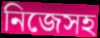
নিজেসহ